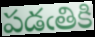
పడఁతికి